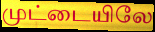
முட்டையிலே